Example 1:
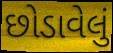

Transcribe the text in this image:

છોડાવેલું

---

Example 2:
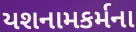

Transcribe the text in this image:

યશનામકર્મના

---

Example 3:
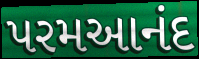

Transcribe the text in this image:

પરમઆનંદ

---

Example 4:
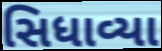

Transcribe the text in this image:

સિધાવ્યા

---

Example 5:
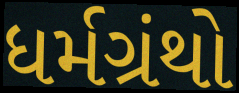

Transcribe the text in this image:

ધર્મગ્રંથો